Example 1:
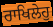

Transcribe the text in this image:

ਰਾਖਿਲੇਹੁ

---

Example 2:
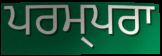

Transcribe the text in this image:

ਪਰਮ੍ਪਰਾ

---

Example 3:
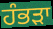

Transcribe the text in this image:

ਹੰਭੜਾ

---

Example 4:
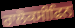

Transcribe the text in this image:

ਰਾਲੋਕਸੀਫਿਨ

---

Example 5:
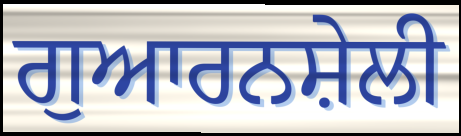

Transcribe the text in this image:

ਗੁਆਰਨਸ਼ੇਲੀ